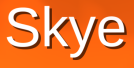
Skye